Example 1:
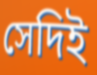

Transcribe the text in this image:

সেদিই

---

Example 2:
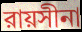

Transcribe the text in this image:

রায়সীনা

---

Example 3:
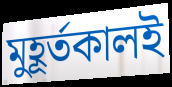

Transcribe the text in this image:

মুহূর্তকালই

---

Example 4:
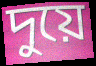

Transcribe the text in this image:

দুয়ে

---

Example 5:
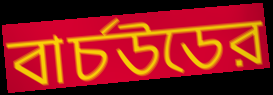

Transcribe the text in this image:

বার্চউডের